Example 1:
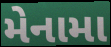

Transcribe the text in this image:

મેનામા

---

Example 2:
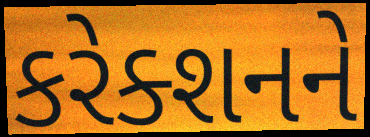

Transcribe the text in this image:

કરેક્શનને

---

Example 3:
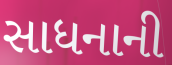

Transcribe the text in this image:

સાધનાની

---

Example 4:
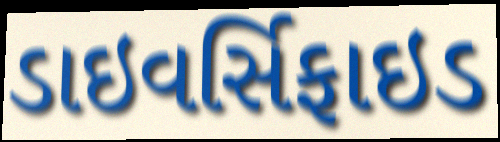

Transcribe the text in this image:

ડાઇવર્સિફાઇડ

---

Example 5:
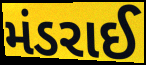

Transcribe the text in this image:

મંડરાઈ